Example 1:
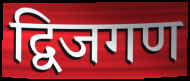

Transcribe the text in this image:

द्विजगण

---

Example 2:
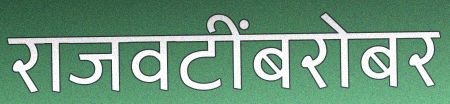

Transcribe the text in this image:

राजवटींबरोबर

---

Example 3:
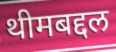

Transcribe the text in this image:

थीमबद्दल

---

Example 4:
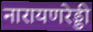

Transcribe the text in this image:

नारायणरेड्डी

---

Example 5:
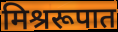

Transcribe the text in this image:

मिश्ररूपात